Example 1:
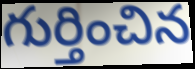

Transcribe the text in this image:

గుర్తించిన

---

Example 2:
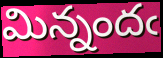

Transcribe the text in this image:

మిన్నందఁ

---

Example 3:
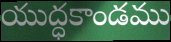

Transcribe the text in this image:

యుద్ధకాండము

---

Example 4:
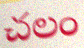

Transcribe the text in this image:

చలం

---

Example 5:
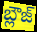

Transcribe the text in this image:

బ్లౌజ్